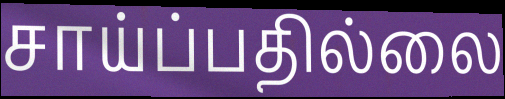
சாய்ப்பதில்லை